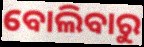
ବୋଲିବାରୁ